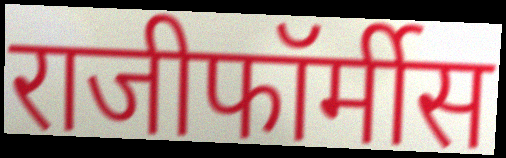
राजीफॉर्मीस